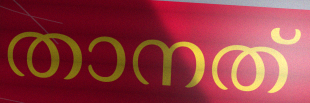
താനത്